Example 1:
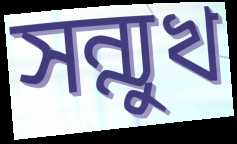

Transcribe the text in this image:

সন্মুখ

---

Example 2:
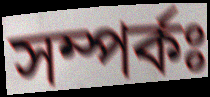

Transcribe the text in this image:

সম্পৰ্কঃ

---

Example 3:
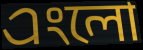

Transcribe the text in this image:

এংলো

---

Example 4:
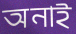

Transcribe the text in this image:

অনাই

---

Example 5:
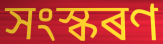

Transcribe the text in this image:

সংস্কৰণ